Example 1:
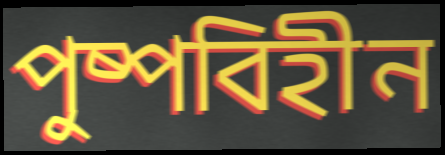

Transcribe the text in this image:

পুষ্পবিহীন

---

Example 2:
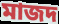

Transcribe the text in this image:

মাজদ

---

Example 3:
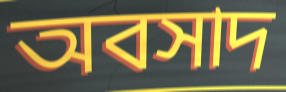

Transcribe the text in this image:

অবসাদ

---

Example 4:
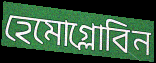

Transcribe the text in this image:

হেমোগ্লোবিন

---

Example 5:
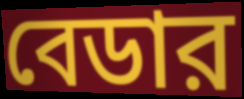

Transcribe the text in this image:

বেডার